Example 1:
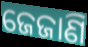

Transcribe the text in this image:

ଜେଜାଣି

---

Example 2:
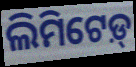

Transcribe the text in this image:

ଲିମିଟେଡ଼୍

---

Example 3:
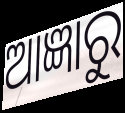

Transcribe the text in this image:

ଆଜ୍ଞାରୁ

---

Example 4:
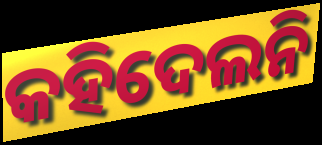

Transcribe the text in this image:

କହିଦେଲନି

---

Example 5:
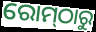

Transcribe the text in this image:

ରୋମ୍‌ଠାରୁ